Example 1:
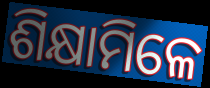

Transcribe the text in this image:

ଶିକ୍ଷାମିଳେ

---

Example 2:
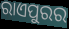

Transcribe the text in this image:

ରାଏପୁରର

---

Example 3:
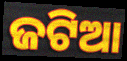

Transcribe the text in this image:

ଜଟିଆ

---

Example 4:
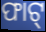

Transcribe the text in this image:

ଫାଟ୍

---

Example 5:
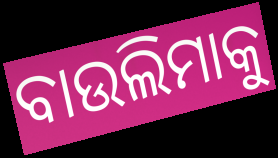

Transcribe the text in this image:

ବାଉଲିମାକୁ